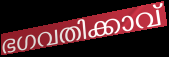
ഭഗവതിക്കാവ്